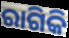
ରାଗିକି